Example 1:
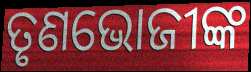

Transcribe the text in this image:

ତୃଣଭୋଜୀଙ୍କ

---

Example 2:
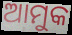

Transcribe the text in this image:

ଆମୁକ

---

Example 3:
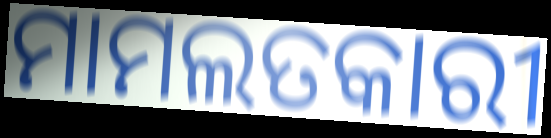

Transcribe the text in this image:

ମାମଲତକାରୀ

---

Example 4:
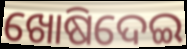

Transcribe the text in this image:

ଖୋଷିଦେଇ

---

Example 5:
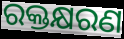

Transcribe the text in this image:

ରକ୍ତକ୍ଷରଣ